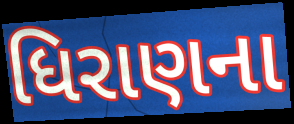
ધિરાણના